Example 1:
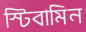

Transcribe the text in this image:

স্টিবামিন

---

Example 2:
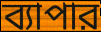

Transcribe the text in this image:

ব্যাপার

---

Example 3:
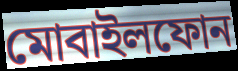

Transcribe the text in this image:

মোবাইলফোন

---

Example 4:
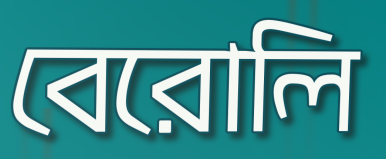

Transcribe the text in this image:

বেরোলি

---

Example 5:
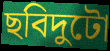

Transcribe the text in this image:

ছবিদুটো